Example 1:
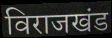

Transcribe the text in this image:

विराजखंड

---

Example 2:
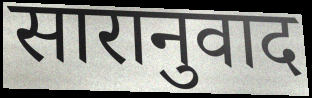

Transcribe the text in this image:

सारानुवाद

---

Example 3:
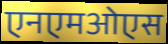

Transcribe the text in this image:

एनएमओएस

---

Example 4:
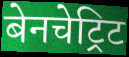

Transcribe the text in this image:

बेनचेट्रिट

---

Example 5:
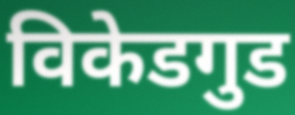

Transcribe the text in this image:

विकेडगुड